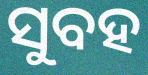
ସୁବହ